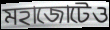
মহাজোটেও